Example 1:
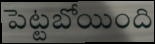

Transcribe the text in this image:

పెట్టబోయింది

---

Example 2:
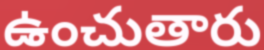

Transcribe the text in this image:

ఉంచుతారు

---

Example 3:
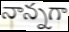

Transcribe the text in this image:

నాన్నగా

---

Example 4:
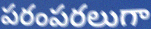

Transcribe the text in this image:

పరంపరలుగా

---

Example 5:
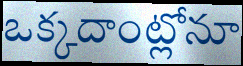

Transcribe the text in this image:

ఒక్కదాంట్లోనూ